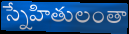
స్నేహితులంతా